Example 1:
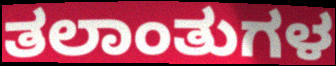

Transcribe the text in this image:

ತಲಾಂತುಗಳ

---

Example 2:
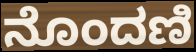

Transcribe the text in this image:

ನೊಂದಣಿ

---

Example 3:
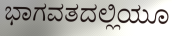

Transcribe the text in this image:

ಭಾಗವತದಲ್ಲಿಯೂ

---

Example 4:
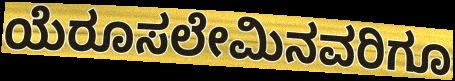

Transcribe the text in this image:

ಯೆರೂಸಲೇಮಿನವರಿಗೂ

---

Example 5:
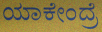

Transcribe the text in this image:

ಯಾಕೇಂದ್ರೆ